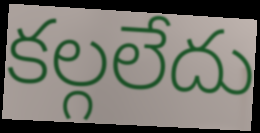
కల్గలేదు